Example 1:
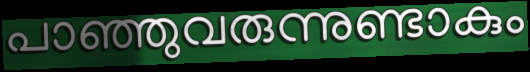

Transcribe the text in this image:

പാഞ്ഞുവരുന്നുണ്ടാകും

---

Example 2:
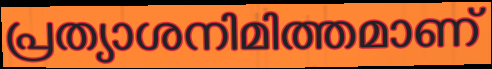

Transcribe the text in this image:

പ്രത്യാശനിമിത്തമാണ്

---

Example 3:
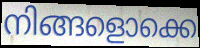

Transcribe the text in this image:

നിങ്ങളൊക്കെ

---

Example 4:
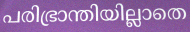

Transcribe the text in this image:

പരിഭ്രാന്തിയില്ലാതെ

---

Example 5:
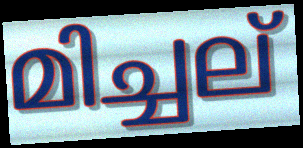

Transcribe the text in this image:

മിച്ചല്